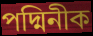
পদ্মিনীক